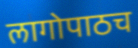
लागोपाठच